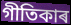
গীতিকাৰ